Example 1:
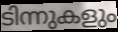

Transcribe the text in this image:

ടിന്നുകളും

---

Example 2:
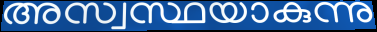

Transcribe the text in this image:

അസ്വസ്ഥയാകുന്നു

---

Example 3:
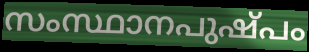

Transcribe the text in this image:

സംസ്ഥാനപുഷ്പം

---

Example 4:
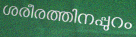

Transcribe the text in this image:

ശരീരത്തിനപ്പുറം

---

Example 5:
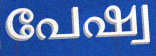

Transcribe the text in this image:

പേഷ്വ